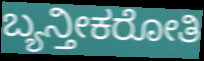
ಬ್ಯನ್ತೀಕರೋತಿ